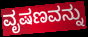
ವೃಷಣವನ್ನು